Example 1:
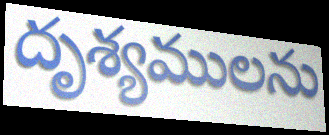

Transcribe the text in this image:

దృశ్యములను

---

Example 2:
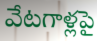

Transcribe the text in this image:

వేటగాళ్లపై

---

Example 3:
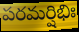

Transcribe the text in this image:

పరమర్షిభిః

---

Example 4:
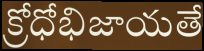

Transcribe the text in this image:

క్రోధోభిజాయతే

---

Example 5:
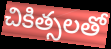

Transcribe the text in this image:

చికిత్సలతో